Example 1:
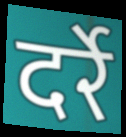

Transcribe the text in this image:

दर्रे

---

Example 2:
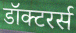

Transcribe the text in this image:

डॉक्टरर्स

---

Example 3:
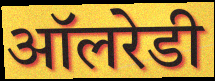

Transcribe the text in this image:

ऑलरेडी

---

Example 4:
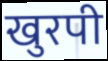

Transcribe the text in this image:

खुरपी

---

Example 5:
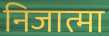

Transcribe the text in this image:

निजात्मा